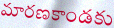
మారణకాండకు